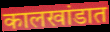
कालखांडात